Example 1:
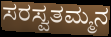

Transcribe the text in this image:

ಸರಸ್ವತಮ್ಮನ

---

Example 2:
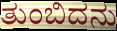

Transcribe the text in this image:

ತುಂಬಿದನು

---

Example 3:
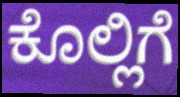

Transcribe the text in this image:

ಕೊಲ್ಲಿಗೆ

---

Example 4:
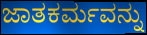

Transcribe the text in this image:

ಜಾತಕರ್ಮವನ್ನು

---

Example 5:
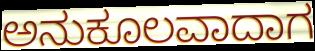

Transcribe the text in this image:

ಅನುಕೂಲವಾದಾಗ